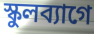
স্কুলব্যাগে